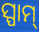
ସ୍ପାମ୍